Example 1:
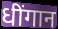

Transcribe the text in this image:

धींगान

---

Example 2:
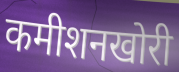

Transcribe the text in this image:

कमीशनखोरी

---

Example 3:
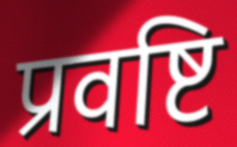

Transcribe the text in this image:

प्रवष्टि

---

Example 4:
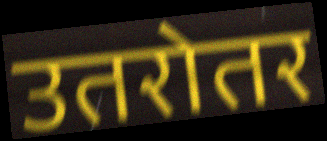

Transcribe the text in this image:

उतरोतर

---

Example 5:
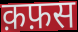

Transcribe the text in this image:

क़फ़स